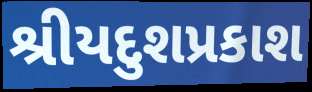
શ્રીયદુશપ્રકાશ